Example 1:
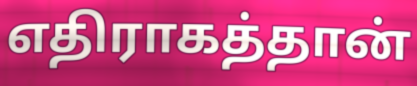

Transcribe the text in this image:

எதிராகத்தான்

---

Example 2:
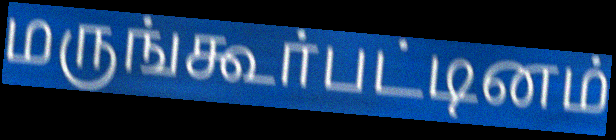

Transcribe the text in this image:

மருங்கூர்பட்டினம்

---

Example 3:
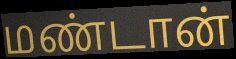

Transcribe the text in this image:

மண்டான்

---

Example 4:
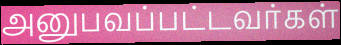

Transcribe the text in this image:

அனுபவப்பட்டவர்கள்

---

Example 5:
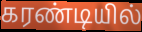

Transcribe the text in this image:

கரண்டியில்